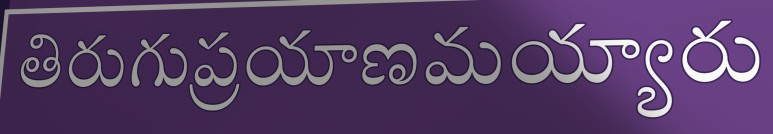
తిరుగుప్రయాణమయ్యారు